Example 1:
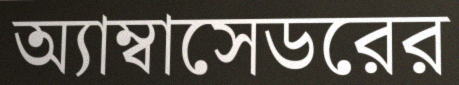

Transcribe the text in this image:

অ্যাম্বাসেডরের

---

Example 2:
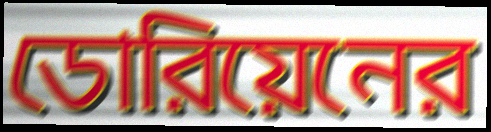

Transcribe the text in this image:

ডোরিয়েনের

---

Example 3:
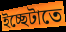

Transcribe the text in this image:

ইচ্ছেটাতে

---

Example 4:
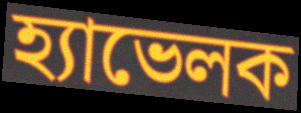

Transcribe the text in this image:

হ্যাভেলক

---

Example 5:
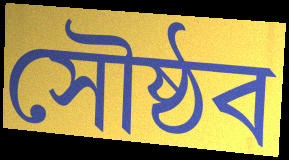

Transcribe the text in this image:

সৌষ্ঠব